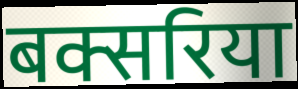
बक्सरिया